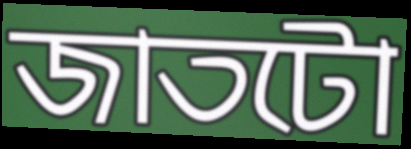
জাতটো